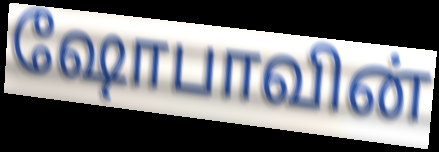
ஷோபாவின்